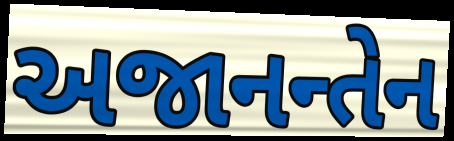
અજાનન્તેન